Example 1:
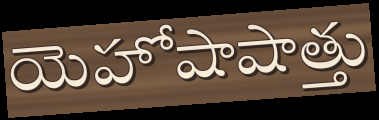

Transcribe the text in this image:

యెహోషాషాత్తు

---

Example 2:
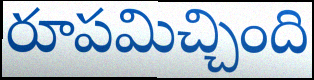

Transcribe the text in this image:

రూపమిచ్చింది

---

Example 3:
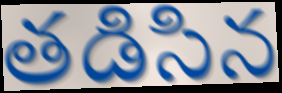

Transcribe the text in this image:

తడిసిన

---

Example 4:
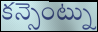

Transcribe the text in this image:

కన్సెంట్ను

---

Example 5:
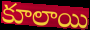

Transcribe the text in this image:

కూలాయి